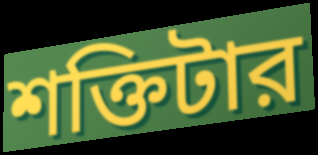
শক্তিটার